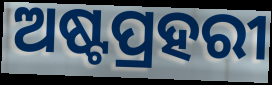
ଅଷ୍ଟପ୍ରହରୀ